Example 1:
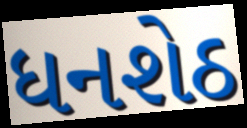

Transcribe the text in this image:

ધનશેઠ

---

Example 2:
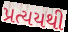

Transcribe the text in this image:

પ્રત્યયથી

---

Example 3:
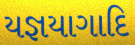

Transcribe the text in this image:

યજ્ઞયાગાદિ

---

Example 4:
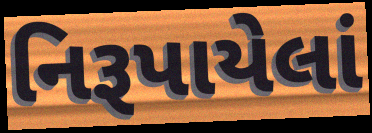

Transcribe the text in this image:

નિરૂપાયેલાં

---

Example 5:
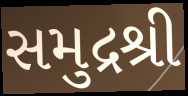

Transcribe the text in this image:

સમુદ્રશ્રી